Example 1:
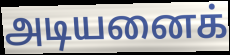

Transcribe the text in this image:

அடியனைக்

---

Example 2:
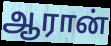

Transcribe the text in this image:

ஆரான்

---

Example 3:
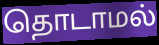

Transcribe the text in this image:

தொடாமல்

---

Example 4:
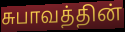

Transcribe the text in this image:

சுபாவத்தின்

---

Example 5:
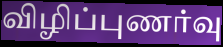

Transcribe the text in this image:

விழிப்புணர்வு